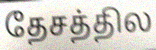
தேசத்தில